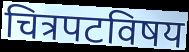
चित्रपटविषय